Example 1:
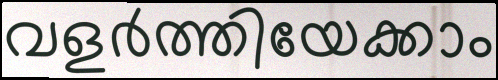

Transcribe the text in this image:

വളർത്തിയേക്കാം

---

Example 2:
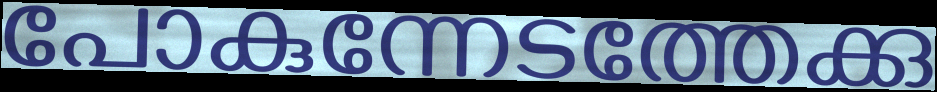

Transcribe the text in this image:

പോകുന്നേടത്തേക്കു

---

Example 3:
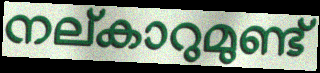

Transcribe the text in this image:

നല്കാറുമുണ്ട്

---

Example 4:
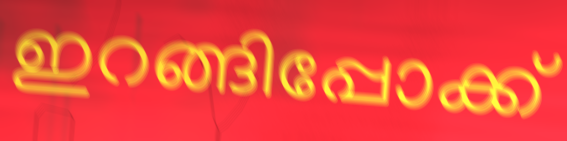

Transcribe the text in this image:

ഇറങ്ങിപ്പോക്ക്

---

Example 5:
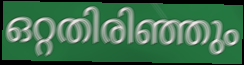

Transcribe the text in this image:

ഒറ്റതിരിഞ്ഞും